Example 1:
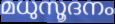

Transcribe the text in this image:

മധുസൂദനം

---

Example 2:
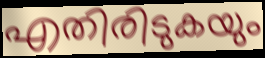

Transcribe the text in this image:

എതിരിടുകയും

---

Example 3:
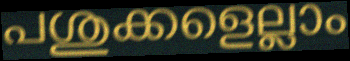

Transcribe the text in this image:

പശുക്കളെല്ലാം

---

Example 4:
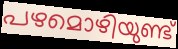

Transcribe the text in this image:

പഴമൊഴിയുണ്ട്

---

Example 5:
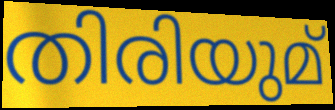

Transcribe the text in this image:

തിരിയുമ്